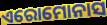
ଏରୋମୋନାସ